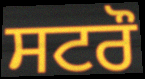
ਸਟਰੌ